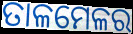
ତାଳମେଳର